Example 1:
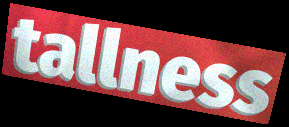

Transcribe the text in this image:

tallness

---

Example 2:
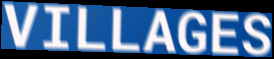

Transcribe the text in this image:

VILLAGES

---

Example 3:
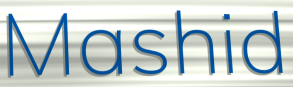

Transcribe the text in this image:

Mashid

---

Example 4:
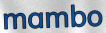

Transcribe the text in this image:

mambo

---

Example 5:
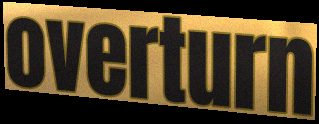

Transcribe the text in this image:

overturn